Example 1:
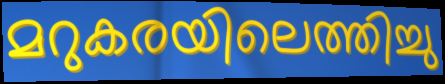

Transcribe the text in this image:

മറുകരയിലെത്തിച്ചു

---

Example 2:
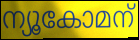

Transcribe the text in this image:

ന്യൂകോമന്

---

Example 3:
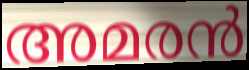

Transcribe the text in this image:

അമരൻ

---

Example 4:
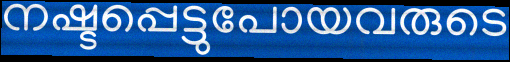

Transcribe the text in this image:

നഷ്ടപ്പെട്ടുപോയവരുടെ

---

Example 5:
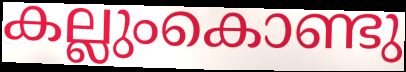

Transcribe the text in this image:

കല്ലുംകൊണ്ടു